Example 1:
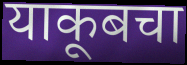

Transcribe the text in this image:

याकूबचा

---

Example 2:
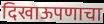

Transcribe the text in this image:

दिखाऊपणाचा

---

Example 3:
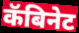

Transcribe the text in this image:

कॅबिनेट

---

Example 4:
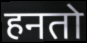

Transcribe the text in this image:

हनतो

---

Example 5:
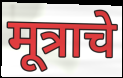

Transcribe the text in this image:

मूत्राचे